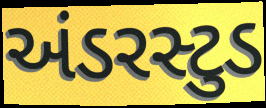
અંડરસ્ટુડ